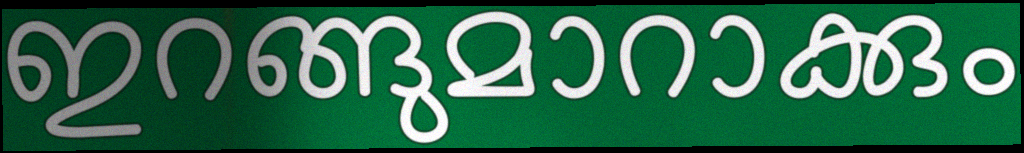
ഇറങ്ങുമാറാക്കും